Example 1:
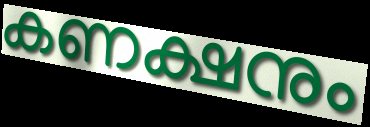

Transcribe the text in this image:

കണക്ഷനും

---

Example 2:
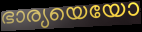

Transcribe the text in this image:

ഭാര്യയെയോ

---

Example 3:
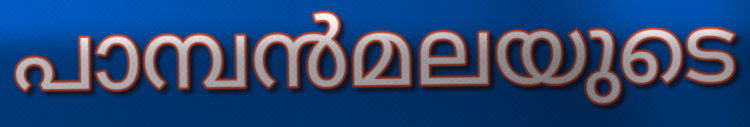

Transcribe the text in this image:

പാമ്പൻമലയുടെ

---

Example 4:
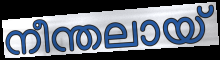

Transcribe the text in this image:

നീന്തലായ്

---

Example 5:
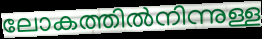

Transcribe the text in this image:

ലോകത്തിൽനിന്നുള്ള